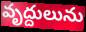
వృద్దులును